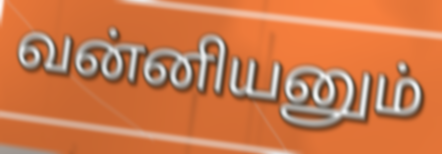
வன்னியனும்